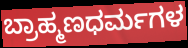
ಬ್ರಾಹ್ಮಣಧರ್ಮಗಳ